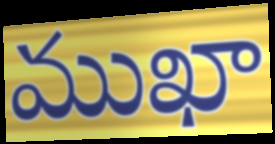
ముఖా